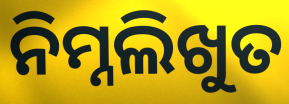
ନିମ୍ନଲିଖୁତ